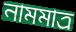
নামমাত্ৰ